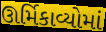
ઊર્મિકાવ્યોમાં